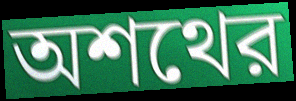
অশথের